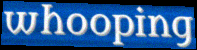
whooping